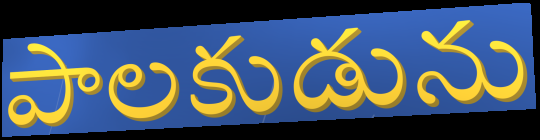
పాలకుడును